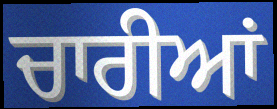
ਚਾਰੀਆਂ